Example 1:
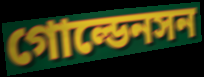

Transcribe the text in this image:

গোল্ডেনসন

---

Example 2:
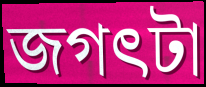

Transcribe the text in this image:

জগৎটা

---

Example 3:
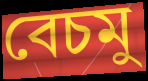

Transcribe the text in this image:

বেচমু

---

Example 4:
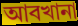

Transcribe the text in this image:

আবখানা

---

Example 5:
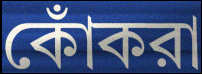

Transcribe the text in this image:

কোঁকরা